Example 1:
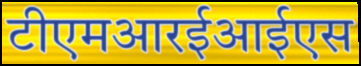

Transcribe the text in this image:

टीएमआरईआईएस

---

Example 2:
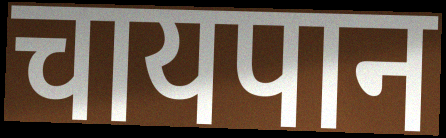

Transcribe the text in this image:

चायपान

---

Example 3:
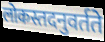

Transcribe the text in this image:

लोकस्तदनुवर्तते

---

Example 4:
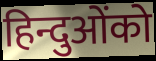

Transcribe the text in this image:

हिन्दुओंको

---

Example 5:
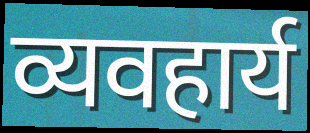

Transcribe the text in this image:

व्यवहार्य